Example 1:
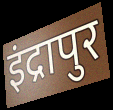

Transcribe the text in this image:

इंद्रापुर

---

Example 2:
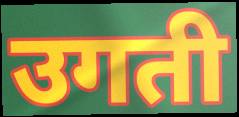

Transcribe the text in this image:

उगती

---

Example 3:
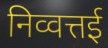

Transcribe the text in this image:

निव्वत्तई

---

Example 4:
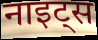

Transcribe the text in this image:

नाइट्स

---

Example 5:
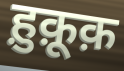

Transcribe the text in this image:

ह़ुक़ूक़